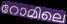
റോമിലെ